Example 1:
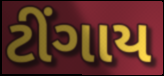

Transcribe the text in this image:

ટીંગાય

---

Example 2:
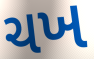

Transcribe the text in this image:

ચખ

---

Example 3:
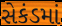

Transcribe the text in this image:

સેકંડમાં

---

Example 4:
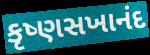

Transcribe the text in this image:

કૃષ્ણસખાનંદ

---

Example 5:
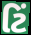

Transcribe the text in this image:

ટિં